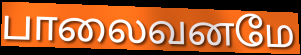
பாலைவனமே